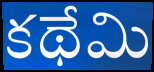
కథేమి